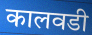
कालवडी